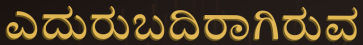
ಎದುರುಬದಿರಾಗಿರುವ